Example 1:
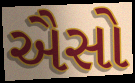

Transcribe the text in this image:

ઐસો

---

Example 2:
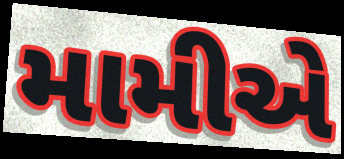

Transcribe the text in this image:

મામીએ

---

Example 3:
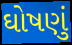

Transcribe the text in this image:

ઘોષણું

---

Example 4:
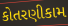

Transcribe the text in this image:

કોતરણીકામ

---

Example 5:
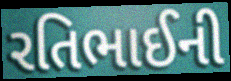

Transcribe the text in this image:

રતિભાઈની